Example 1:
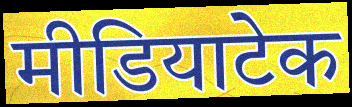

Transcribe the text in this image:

मीडियाटेक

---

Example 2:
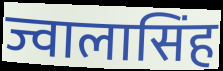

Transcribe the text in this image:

ज्वालासिंह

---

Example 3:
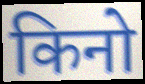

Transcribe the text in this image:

किनो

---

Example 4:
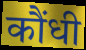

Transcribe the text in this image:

कौंधी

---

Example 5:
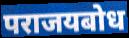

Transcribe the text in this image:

पराजयबोध